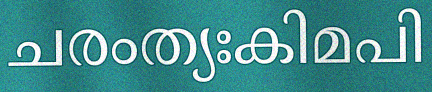
ചരംത്യഃകിമപി